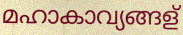
മഹാകാവ്യങ്ങള്